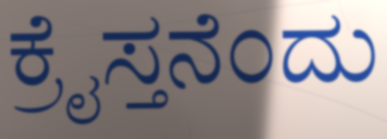
ಕ್ರೈಸ್ತನೆಂದು